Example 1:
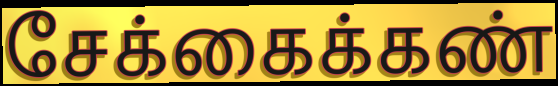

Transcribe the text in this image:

சேக்கைக்கண்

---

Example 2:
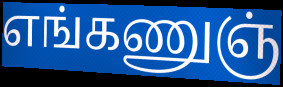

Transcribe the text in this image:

எங்கணுஞ்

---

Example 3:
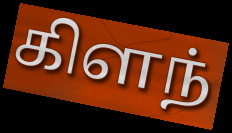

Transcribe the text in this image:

கிளந்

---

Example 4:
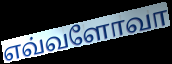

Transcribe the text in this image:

எவ்வளோவா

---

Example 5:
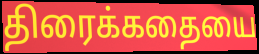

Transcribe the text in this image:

திரைக்கதையை